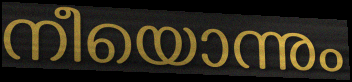
നീയൊന്നും